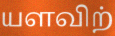
யளவிற்